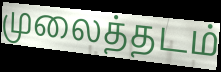
முலைத்தடம்